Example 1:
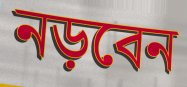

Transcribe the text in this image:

নড়বেন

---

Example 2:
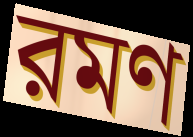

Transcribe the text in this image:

রমণ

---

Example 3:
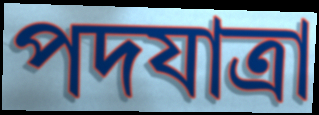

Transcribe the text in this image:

পদযাত্রা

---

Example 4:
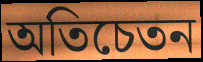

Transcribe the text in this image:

অতিচেতন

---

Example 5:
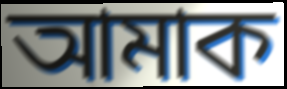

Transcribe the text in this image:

আমাক